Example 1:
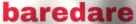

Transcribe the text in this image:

baredare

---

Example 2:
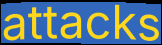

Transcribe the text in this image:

attacks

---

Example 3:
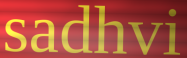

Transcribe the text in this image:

sadhvi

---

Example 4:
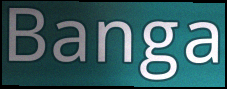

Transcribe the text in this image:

Banga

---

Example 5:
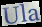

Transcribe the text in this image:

Ula